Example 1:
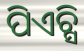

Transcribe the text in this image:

ପିଏଚ୍ସି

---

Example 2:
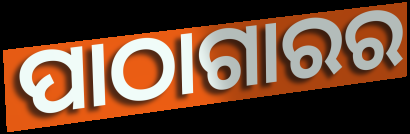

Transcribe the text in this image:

ପାଠାଗାରର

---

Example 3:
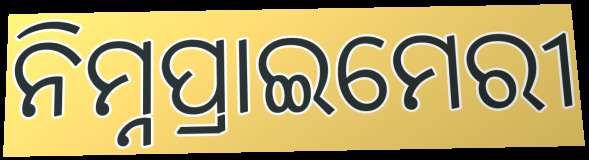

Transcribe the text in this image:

ନିମ୍ନପ୍ରାଇମେରୀ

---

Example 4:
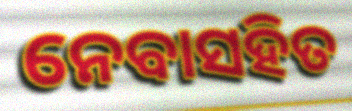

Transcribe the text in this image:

ନେବାସହିତ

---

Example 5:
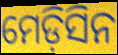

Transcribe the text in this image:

ମେଡ଼ିସିନ